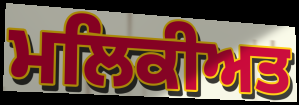
ਮਲਿਕੀਅਤ